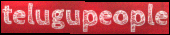
telugupeople